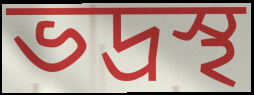
ভদ্রস্থ